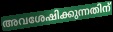
അവശേഷിക്കുന്നതിന്